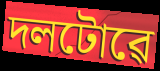
দলটোৱে